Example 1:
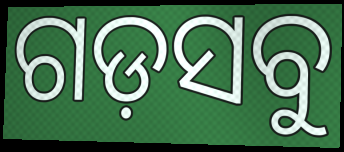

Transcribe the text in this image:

ଗଡ଼ସବୁ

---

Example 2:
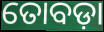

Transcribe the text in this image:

ତୋବଡ଼ା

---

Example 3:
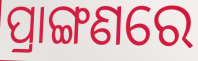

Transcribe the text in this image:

ପ୍ରାଙ୍ଗଣରେ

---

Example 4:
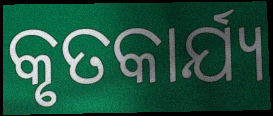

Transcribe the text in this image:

କୃତକାର୍ଯ୍ୟ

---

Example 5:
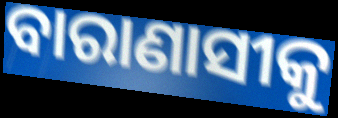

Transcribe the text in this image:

ବାରାଣାସୀକୁ